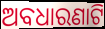
ଅବଧାରଣାଟି